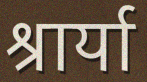
श्रार्या